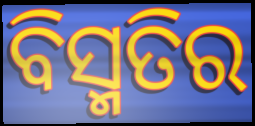
ବିସ୍ମତିର